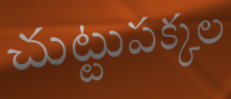
చుట్టుపక్కల